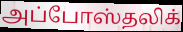
அப்போஸ்தலிக்